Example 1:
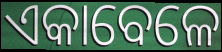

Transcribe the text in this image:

ଏକାବେଳେ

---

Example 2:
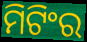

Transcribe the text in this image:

ମିଟିଂର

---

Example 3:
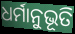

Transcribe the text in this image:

ଧର୍ମାନୁଭୂତି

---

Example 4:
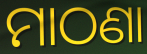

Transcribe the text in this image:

ମାଠଣା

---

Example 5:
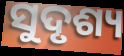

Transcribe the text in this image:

ସୁଦୃଶ୍ୟ